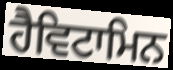
ਹੈਵਿਟਾਮਿਨ